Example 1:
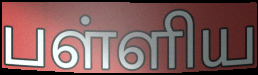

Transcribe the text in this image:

பள்ளிய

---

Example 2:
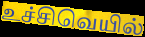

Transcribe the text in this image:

உச்சிவெயில்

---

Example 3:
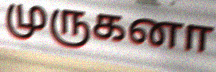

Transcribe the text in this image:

முருகனா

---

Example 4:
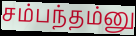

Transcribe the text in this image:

சம்பந்தம்னு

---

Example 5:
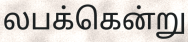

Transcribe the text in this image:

லபக்கென்று